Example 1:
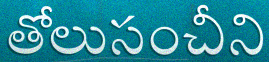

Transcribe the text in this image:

తోలుసంచీని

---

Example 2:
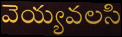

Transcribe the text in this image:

వెయ్యవలసి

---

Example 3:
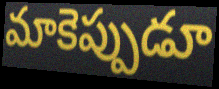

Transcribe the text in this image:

మాకెప్పుడూ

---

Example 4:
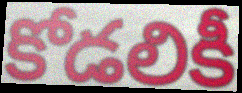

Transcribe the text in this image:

కోడలికీ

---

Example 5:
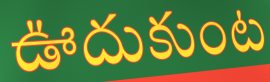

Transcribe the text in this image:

ఊదుకుంట